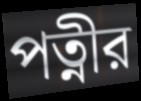
পত্নীর